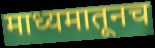
माध्यमातूनच